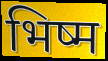
भिष्म